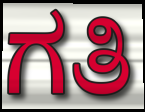
ಗತಿ